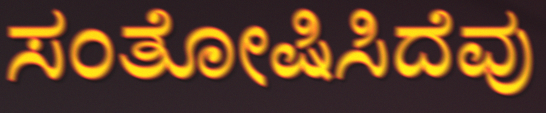
ಸಂತೋಷಿಸಿದೆವು